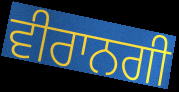
ਵੀਰਾਨਗੀ